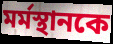
মর্মস্থানকে